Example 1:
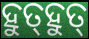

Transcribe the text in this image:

ହୁତ୍‍ହୁତ୍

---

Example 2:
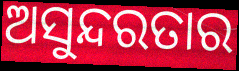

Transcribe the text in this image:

ଅସୁନ୍ଦରତାର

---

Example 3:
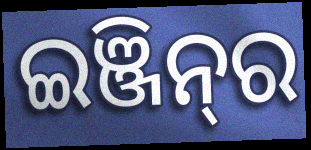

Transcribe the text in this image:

ଇଞ୍ଜିନ୍‌ର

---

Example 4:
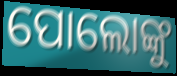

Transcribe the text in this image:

ପୋଲୋଙ୍କୁ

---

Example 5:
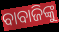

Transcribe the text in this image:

ବାବାଜିଙ୍କୁ